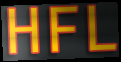
HFL